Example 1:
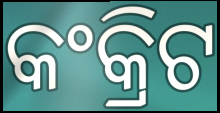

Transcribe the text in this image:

କଂକ୍ରିଟ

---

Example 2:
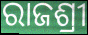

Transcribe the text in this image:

ରାଜଶ୍ରୀ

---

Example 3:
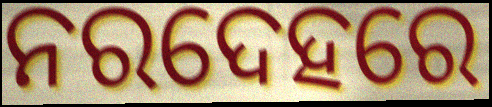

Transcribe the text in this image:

ନରଦେହରେ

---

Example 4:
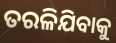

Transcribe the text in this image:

ତରଳିଯିବାକୁ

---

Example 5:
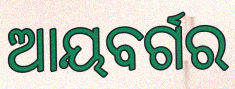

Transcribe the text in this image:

ଆୟବର୍ଗର